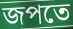
জপতে